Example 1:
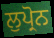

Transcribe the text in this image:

ਲੁਪ੍ਰੋਨ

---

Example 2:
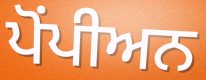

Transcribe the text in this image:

ਪੋਂਪੀਅਨ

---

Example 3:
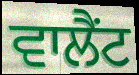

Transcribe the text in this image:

ਵਾਲੈਂਟ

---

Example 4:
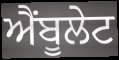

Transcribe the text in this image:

ਐਂਬੂਲੇਟ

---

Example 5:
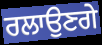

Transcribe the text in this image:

ਰਲਾਉਣਗੇ